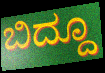
ಬಿದ್ದೂ